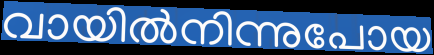
വായിൽനിന്നുപോയ